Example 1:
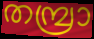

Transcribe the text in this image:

തമ്പ്രാ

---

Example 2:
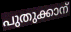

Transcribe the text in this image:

പുതുക്കാന്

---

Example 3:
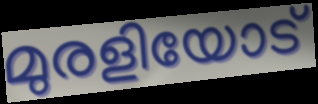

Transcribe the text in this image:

മുരളിയോട്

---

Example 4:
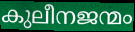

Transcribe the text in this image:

കുലീനജന്മം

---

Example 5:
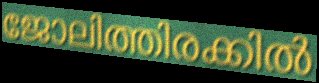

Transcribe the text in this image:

ജോലിത്തിരക്കിൽ